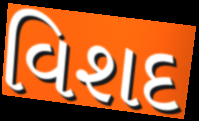
વિશદ